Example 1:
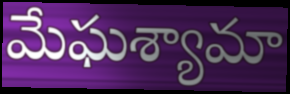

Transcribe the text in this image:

మేఘశ్యామా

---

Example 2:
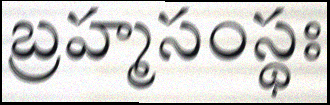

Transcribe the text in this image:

బ్రహ్మసంస్థః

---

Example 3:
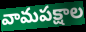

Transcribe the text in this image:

వామపక్షాల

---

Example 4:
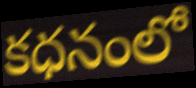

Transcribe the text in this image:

కధనంలో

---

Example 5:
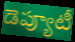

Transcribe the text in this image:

డెప్యూటీ